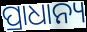
ପ୍ରାଧାନ୍ୟ